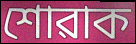
শোৱাক